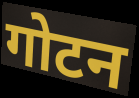
गोटन